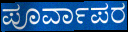
ಪೂರ್ವಾಪರ